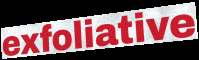
exfoliative